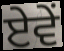
ਏਵੇਂ